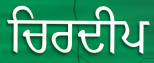
ਚਿਰਦੀਪ